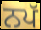
ਨਪੱ